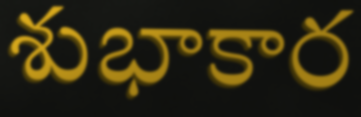
శుభాకార